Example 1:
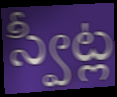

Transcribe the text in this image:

స్వీట్ల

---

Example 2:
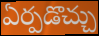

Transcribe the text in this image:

ఏర్పడొచ్చు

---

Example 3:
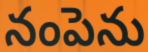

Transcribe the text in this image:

నంపెను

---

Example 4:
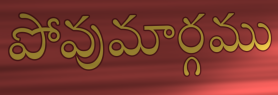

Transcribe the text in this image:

పోవుమార్గము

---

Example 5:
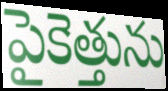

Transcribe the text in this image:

పైకెత్తును